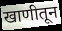
खाणीतून